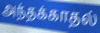
அந்தக்காதல்